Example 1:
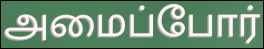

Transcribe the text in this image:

அமைப்போர்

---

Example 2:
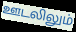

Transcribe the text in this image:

ஊடலிலும்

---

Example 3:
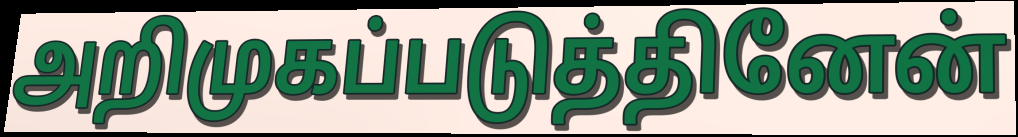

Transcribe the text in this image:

அறிமுகப்படுத்தினேன்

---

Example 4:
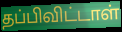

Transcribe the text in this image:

தப்பிவிட்டாள்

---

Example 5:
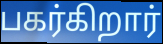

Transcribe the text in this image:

பகர்கிறார்